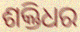
ଶକ୍ତିଧର